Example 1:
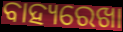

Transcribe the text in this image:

ବାହ୍ୟରେଖା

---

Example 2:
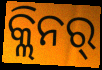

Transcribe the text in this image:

କ୍ଲିନର୍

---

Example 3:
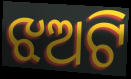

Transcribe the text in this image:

ଝଅଟି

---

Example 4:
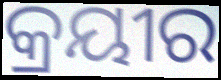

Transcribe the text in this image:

କ୍ରୟୀର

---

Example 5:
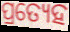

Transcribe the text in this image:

ପ୍ରତ୍ୟେହ